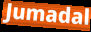
Jumadal